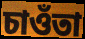
চাওঁতা